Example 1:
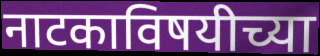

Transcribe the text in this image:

नाटकाविषयीच्या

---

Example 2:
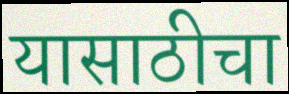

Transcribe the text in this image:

यासाठीचा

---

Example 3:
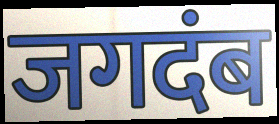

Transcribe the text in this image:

जगदंब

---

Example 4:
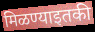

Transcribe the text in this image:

मिळण्याइतकी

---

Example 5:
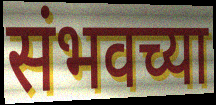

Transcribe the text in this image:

संभवच्या